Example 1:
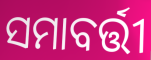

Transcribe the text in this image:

ସମାବର୍ତ୍ତୀ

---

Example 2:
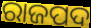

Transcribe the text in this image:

ରାଜପଦ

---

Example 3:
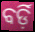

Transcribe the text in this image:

ବର୍ଡ଼ି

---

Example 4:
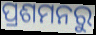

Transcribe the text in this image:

ପ୍ରଶମନରୁ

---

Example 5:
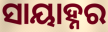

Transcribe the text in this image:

ସାୟାହ୍ନର